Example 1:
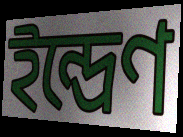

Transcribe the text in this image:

ইন্দ্রেণ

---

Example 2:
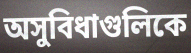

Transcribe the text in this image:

অসুবিধাগুলিকে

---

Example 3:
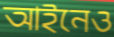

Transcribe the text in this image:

আইনেও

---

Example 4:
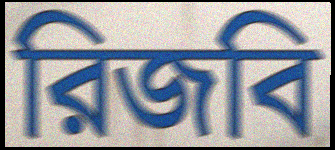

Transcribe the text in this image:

রিজবি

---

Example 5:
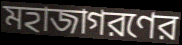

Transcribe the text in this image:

মহাজাগরণের